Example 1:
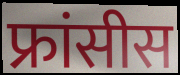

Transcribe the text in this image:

फ्रांसीस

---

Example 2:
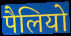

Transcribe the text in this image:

पैलियो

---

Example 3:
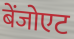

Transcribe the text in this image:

बेंजोएट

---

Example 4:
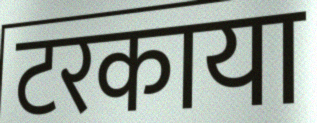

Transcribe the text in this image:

टरकाया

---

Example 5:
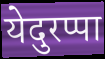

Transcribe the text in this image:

येदुरप्पा